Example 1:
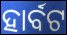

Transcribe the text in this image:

ହାର୍ବଟ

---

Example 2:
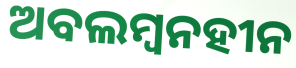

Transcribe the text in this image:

ଅବଲମ୍ବନହୀନ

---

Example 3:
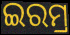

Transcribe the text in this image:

ଇରମ୍ର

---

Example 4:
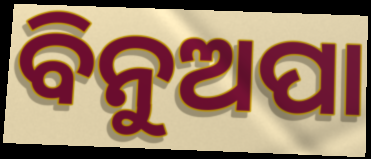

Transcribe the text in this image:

ବିନୁଅପା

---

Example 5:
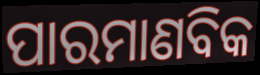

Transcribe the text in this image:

ପାରମାଣବିକ